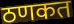
ठणकत